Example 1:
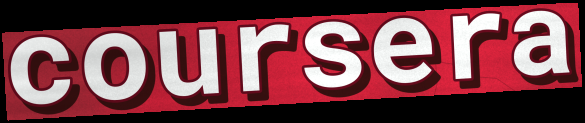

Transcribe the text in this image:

coursera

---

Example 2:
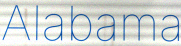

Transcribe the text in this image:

Alabama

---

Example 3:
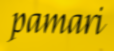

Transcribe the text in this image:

pamari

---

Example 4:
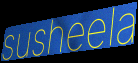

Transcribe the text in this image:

susheela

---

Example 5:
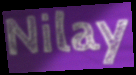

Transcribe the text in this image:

Nilay